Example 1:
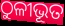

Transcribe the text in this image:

ଠୁଳୀଭୂତ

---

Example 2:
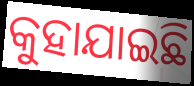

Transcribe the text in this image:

କୁହାଯାଇଛି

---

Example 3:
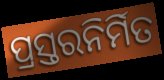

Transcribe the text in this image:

ପ୍ରସ୍ତରନିର୍ମିତ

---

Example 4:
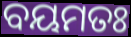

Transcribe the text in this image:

ବୟମତଃ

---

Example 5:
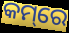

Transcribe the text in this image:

କମ୍‌ରେ